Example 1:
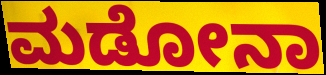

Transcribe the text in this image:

ಮಡೋನಾ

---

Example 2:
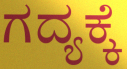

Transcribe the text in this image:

ಗದ್ಯಕ್ಕೆ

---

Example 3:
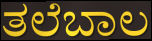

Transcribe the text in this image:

ತಲೆಬಾಲ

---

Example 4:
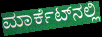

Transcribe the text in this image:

ಮಾರ್ಕೆಟ್‍ನಲ್ಲಿ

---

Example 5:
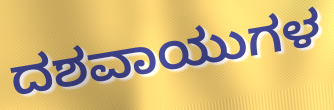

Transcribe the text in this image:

ದಶವಾಯುಗಳ